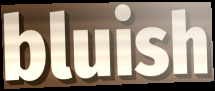
bluish